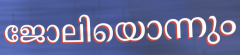
ജോലിയൊന്നും